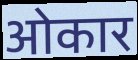
ओकार